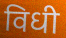
विधी